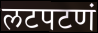
लटपटणं